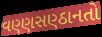
વણ્ણસણ્ઠાનતો